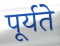
पूर्यते